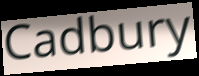
Cadbury